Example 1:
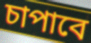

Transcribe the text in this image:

চাপাবে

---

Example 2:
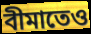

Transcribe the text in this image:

বীমাতেও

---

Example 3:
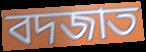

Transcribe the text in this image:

বদজাত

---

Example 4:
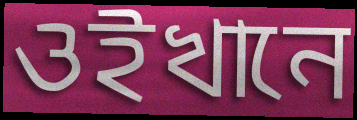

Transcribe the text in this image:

ওইখানে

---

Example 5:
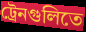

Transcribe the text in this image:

ট্রেনগুলিতে